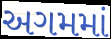
અગમમાં